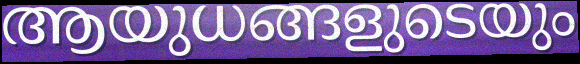
ആയുധങ്ങളുടെയും